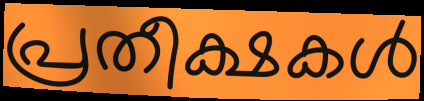
പ്രതീക്ഷകൾ